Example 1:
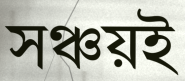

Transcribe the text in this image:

সঞ্চয়ই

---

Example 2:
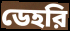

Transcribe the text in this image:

ডেহরি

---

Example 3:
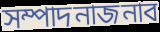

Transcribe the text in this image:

সম্পাদনাজনাব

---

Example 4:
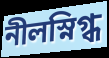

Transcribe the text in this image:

নীলস্নিগ্ধ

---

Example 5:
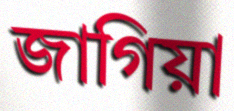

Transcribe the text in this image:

জাগিয়া